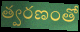
త్వరణంతో